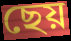
ছেয়